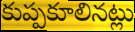
కుప్పకూలినట్లు